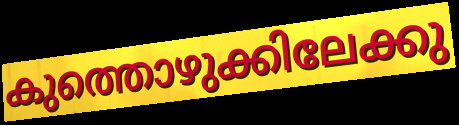
കുത്തൊഴുക്കിലേക്കു